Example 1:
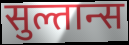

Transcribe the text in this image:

सुल्तान्स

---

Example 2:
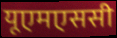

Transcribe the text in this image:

यूएमएससी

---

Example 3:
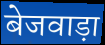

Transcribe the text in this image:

बेजवाड़ा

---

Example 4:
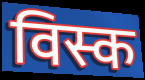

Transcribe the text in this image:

विस्क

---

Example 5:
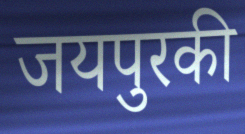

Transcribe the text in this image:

जयपुरकी